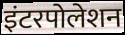
इंटरपोलेशन